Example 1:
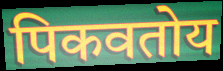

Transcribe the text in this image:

पिकवतोय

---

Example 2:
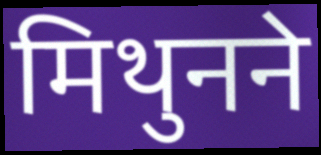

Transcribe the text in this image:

मिथुनने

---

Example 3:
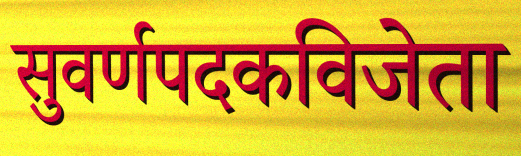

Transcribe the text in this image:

सुवर्णपदकविजेता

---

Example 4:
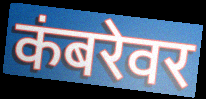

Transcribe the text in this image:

कंबरेवर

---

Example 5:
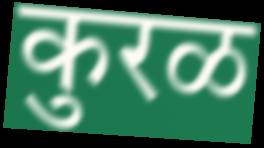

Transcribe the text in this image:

कुरळ